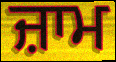
ਜ਼ਾਮ